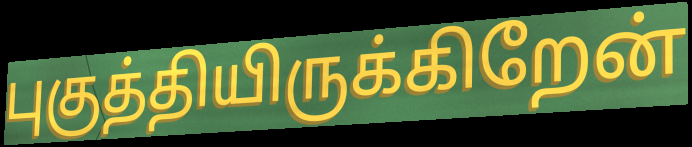
புகுத்தியிருக்கிறேன்